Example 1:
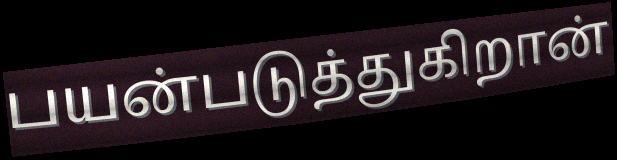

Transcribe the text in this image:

பயன்படுத்துகிறான்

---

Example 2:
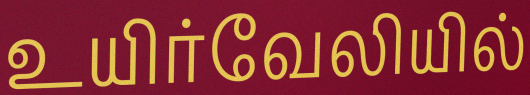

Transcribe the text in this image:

உயிர்வேலியில்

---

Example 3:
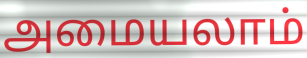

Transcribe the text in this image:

அமையலாம்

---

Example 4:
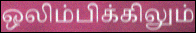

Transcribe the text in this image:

ஒலிம்பிக்கிலும்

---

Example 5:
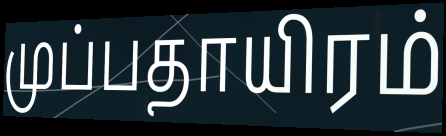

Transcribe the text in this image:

முப்பதாயிரம்